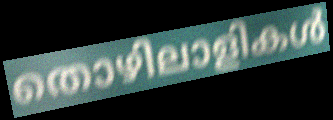
തൊഴിലാളികൾ